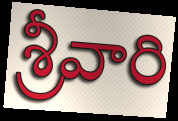
శ్రీవారి